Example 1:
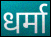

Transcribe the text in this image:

धर्मा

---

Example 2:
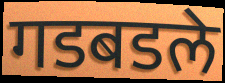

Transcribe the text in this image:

गडबडले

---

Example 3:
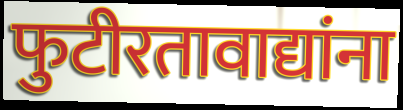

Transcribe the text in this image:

फुटीरतावाद्यांना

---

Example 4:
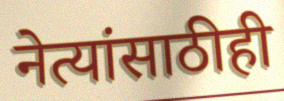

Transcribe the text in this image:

नेत्यांसाठीही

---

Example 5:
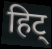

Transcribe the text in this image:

हिट्